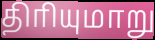
திரியுமாறு